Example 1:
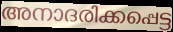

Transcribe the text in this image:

അനാദരിക്കപ്പെട്ട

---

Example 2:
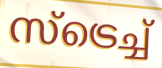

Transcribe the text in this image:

സ്ട്രെച്ച്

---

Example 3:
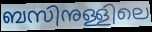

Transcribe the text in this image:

ബസിനുള്ളിലെ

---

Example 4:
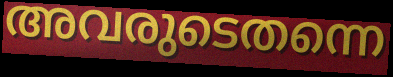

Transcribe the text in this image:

അവരുടെതന്നെ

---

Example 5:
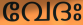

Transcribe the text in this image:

വേദഃ